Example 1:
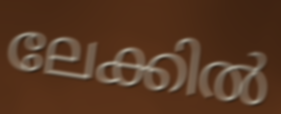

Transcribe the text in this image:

ലേക്കിൽ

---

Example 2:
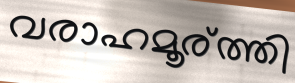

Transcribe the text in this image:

വരാഹമൂര്ത്തി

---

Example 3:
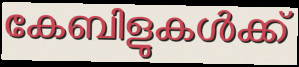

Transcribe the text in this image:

കേബിളുകൾക്ക്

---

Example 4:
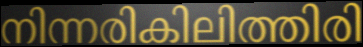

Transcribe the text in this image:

നിന്നരികിലിത്തിരി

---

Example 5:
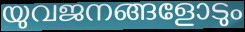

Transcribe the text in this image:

യുവജനങ്ങളോടും